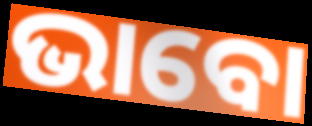
ଭାବୋ